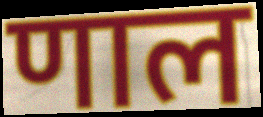
णाल